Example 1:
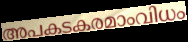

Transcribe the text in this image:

അപകടകരമാംവിധം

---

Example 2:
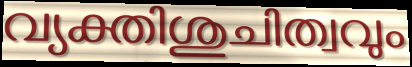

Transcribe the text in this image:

വ്യക്തിശുചിത്വവും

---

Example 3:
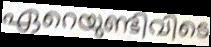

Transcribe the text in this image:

ഏറെയുണ്ടിവിടെ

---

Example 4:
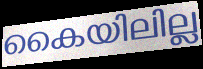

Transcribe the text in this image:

കൈയിലില്ല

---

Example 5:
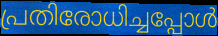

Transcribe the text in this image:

പ്രതിരോധിച്ചപ്പോൾ